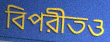
বিপরীতও